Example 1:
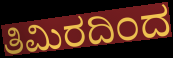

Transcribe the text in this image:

ತಿಮಿರದಿಂದ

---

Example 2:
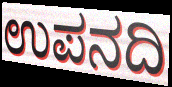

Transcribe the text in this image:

ಉಪನದಿ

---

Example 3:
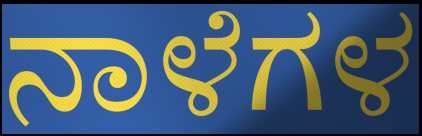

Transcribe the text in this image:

ನಾಳೆಗಳ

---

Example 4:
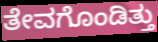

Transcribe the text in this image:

ತೇವಗೊಂಡಿತ್ತು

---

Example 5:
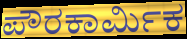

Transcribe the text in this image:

ಪೌರಕಾರ್ಮಿಕ